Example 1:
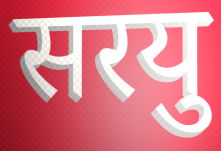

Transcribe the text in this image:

सरयु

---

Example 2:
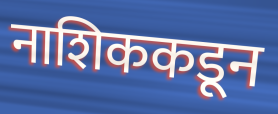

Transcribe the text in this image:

नाशिककडून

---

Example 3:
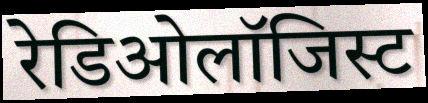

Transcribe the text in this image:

रेडिओलॉजिस्ट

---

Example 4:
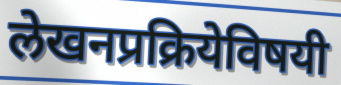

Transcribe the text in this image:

लेखनप्रक्रियेविषयी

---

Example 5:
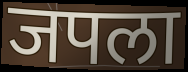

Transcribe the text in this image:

जपला